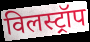
विलस्ट्रॉप